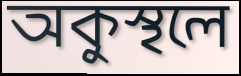
অকুস্থলে